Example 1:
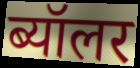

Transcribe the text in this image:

ब्यॉलर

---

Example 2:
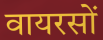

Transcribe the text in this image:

वायरसों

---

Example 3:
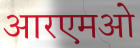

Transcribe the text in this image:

आरएमओ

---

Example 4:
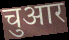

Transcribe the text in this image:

चुआर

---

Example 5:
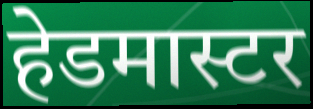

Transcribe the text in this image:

हेडमास्टर